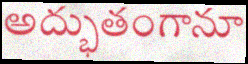
అద్భుతంగానూ